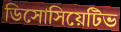
ডিসোসিয়েটিভ